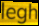
legh